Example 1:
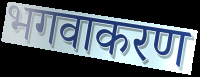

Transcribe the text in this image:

भगवाकरण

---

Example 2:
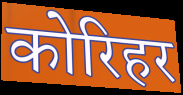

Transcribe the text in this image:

कोरिहर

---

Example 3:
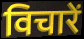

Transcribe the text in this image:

विचारें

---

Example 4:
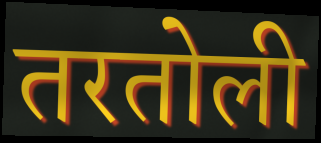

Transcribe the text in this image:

तरतोली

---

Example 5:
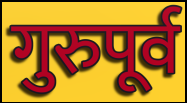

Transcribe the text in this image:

गुरुपूर्व